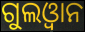
ଗୁଲଓ୍ୱାନ